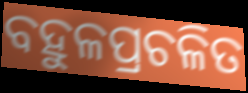
ବହୁଳପ୍ରଚଳିତ